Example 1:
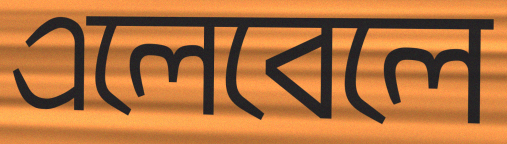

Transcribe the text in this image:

এলেবেলে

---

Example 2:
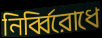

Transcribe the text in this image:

নির্ব্বিরোধে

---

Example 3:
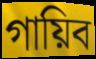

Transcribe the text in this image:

গায়িব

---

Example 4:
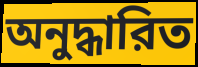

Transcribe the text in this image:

অনুদ্ধারিত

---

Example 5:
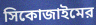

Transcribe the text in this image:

সিকোজাইমের